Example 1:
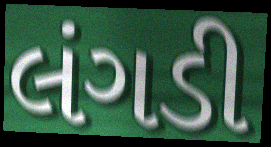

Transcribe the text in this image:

લંગડી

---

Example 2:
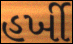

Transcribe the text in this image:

હર્ખી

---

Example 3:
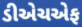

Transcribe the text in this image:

ડીએચએફ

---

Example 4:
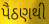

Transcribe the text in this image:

પૈઠણથી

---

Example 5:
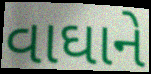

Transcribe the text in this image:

વાઘાને